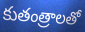
కుతంత్రాలతో